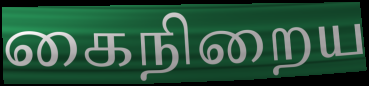
கைநிறைய